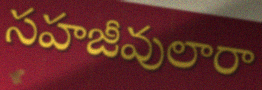
సహజీవులారా